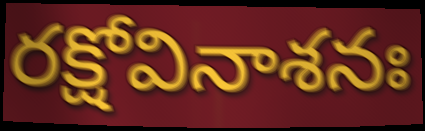
రక్షోవినాశనః